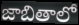
జాబితాలో